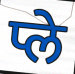
प्ले